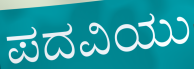
ಪದವಿಯು